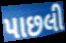
પાછલી